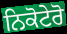
ਨਿਕੋਟੇਰੋ